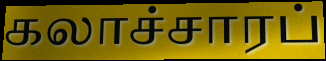
கலாச்சாரப்